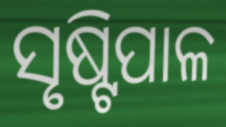
ସୃଷ୍ଟିପାଳ